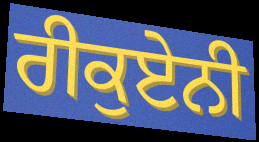
ਰੀਕੁਏਨੀ